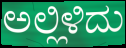
ಅಲ್ಲಿಳಿದು